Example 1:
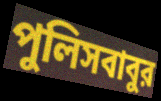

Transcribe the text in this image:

পুলিসবাবুর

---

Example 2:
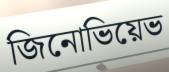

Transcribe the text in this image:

জিনোভিয়েভ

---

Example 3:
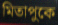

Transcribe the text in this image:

মিতাপুকে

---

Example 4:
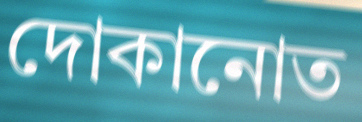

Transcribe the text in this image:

দোকানোত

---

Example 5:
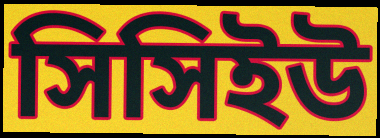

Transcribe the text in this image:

সিসিইউ